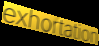
exhortation